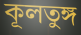
কূলতুঙ্গ